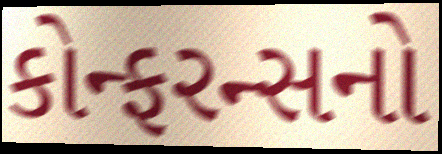
કોન્ફરન્સનો